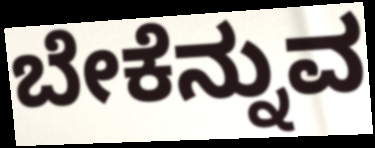
ಬೇಕೆನ್ನುವ